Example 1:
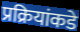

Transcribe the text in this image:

प्रक्रियांकडे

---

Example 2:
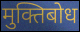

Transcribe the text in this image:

मुक्तिबोध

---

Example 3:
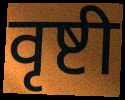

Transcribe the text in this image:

वृष्टी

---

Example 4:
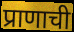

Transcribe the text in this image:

प्राणाची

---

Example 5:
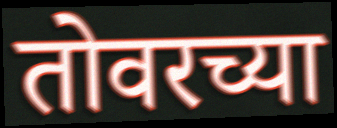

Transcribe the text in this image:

तोवरच्या